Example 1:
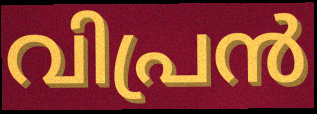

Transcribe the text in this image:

വിപ്രൻ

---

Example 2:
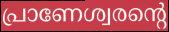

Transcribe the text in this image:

പ്രാണേശ്വരന്റെ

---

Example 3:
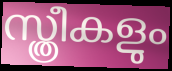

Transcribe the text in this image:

സ്ത്രീകളും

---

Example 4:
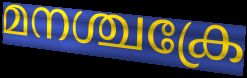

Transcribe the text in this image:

മനശ്ചക്രേ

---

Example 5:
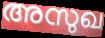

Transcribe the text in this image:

അസുഖ